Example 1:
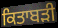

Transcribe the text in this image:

ਕਿਤਾਬੜੀ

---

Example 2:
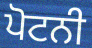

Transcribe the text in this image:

ਪੋਟਨੀ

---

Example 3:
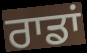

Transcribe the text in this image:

ਰਾਡਾਂ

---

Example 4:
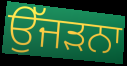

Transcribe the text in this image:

ਉੱਜੜਨਾ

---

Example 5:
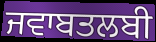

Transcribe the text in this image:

ਜਵਾਬਤਲਬੀ